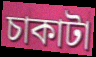
চাকাটা